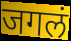
जगलं